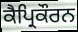
ਕੈਪ੍ਰਿਕੌਰਨ